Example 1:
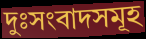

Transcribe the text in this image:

দুঃসংবাদসমূহ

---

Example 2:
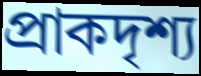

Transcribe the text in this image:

প্রাকদৃশ্য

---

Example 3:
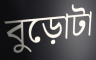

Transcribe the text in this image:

বুড়োটা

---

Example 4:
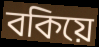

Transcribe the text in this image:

বকিয়ে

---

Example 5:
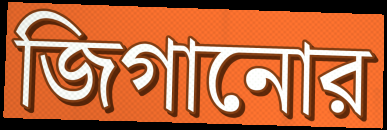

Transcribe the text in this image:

জিগানোর